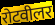
रोटवीलर